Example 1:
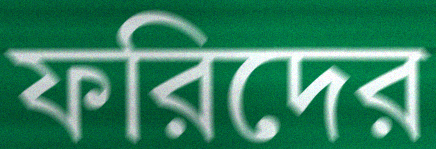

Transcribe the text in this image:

ফরিদের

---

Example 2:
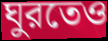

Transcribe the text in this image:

ঘুরতেও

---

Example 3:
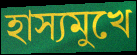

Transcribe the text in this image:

হাস্যমুখে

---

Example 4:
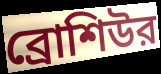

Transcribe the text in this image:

ব্রোশিউর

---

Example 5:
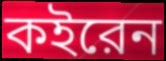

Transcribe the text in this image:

কইরেন